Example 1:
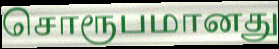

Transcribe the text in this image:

சொரூபமானது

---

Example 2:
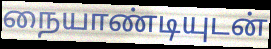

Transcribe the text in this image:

நையாண்டியுடன்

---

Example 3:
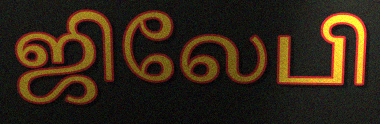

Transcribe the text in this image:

ஜிலேபி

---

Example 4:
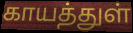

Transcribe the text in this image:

காயத்துள்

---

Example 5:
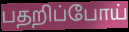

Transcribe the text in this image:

பதறிப்போய்